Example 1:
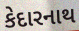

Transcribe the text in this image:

કેદારનાથ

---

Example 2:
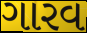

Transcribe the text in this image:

ગારવ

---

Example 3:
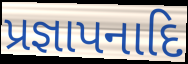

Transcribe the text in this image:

પ્રજ્ઞાપનાદિ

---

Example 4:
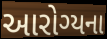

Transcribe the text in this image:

આરોગ્યના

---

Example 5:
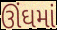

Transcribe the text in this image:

ઊંઘમાં